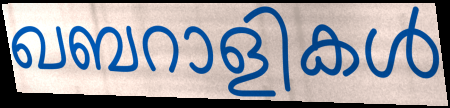
ഖബറാളികൾ